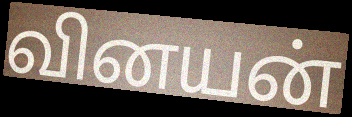
வினயன்